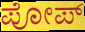
ಪೋಪ್